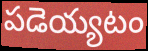
పడెయ్యటం